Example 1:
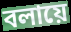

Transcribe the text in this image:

বলায়ে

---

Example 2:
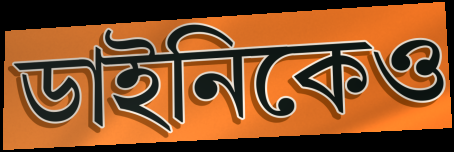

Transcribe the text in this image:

ডাইনিকেও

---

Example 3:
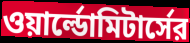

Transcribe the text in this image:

ওয়ার্ল্ডোমিটার্সের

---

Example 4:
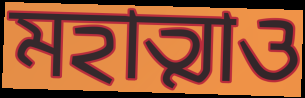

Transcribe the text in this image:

মহাত্মাও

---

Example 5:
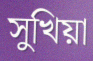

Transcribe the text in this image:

সুখিয়া